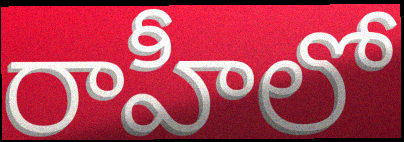
రాహీలో